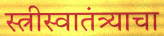
स्त्रीस्वातंत्र्याचा